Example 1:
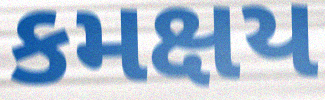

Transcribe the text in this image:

કમક્ષય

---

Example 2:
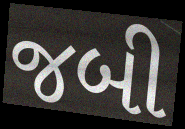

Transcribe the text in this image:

જબી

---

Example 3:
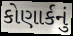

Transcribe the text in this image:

કોણાર્કનું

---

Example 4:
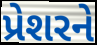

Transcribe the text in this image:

પ્રેશરને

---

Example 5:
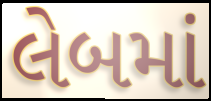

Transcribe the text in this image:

લેબમાં